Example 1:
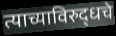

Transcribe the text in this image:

त्याच्याविरुद्धचे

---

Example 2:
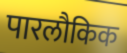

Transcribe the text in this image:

पारलौकिक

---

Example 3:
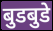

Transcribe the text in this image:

बुडबुडे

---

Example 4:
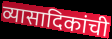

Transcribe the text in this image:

व्यासादिकांची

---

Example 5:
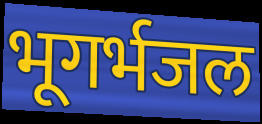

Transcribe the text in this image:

भूगर्भजल